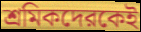
শ্রমিকদেরকেই